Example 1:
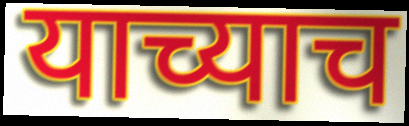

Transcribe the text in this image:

याच्याच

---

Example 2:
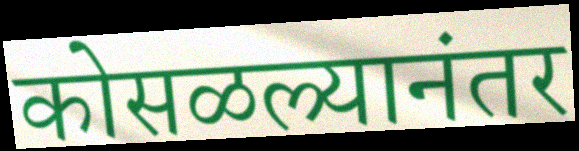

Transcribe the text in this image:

कोसळल्यानंतर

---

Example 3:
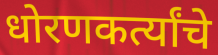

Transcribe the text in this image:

धोरणकर्त्यांचे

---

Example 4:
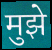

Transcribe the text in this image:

मुझे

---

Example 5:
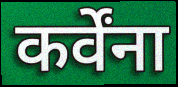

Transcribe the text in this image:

कर्वेंना